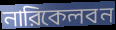
নারিকেলবন